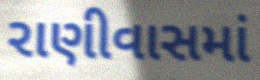
રાણીવાસમાં